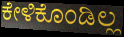
ಕೇಳಿಕೊಂಡಿಲ್ಲ